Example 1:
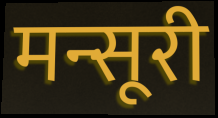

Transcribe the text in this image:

मन्सूरी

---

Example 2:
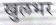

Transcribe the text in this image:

खुलभर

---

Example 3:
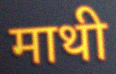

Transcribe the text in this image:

माथी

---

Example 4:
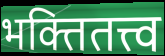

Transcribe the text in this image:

भक्तितत्त्व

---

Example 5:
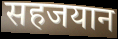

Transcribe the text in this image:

सहजयान